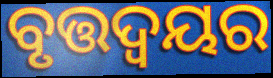
ବୃତ୍ତଦ୍ଵୟର